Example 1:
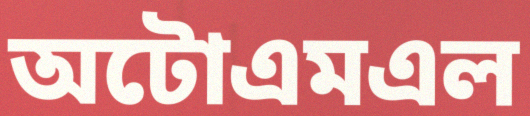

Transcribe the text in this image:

অটোএমএল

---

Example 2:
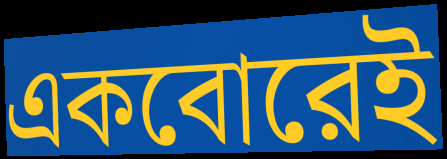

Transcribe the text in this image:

একবোরেই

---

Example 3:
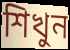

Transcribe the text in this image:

শিখুন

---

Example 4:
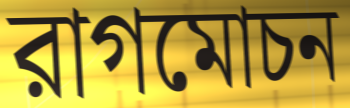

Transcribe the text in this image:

রাগমোচন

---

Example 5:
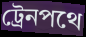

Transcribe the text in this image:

ট্রেনপথে